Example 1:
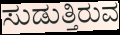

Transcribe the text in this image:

ಸುಡುತ್ತಿರುವ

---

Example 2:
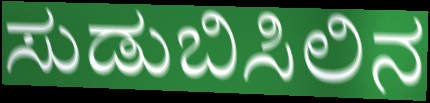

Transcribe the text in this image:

ಸುಡುಬಿಸಿಲಿನ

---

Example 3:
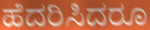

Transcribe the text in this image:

ಹೆದರಿಸಿದರೂ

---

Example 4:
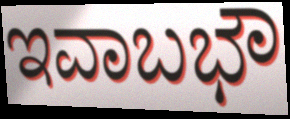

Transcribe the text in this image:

ಇವಾಬಭೌ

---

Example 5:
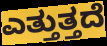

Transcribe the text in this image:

ಎತ್ತುತ್ತದೆ